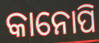
କାନୋପି